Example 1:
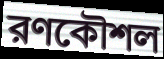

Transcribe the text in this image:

রণকৌশল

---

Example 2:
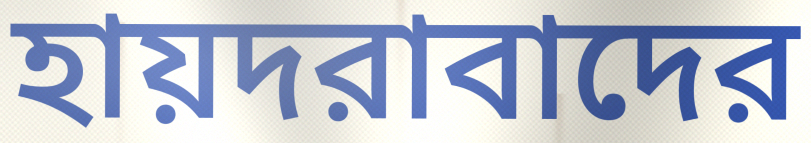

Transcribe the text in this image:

হায়দরাবাদের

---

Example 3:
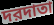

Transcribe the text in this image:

দরদাতা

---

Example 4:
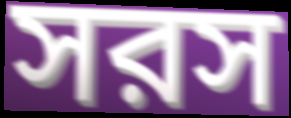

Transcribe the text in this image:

সরস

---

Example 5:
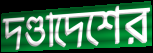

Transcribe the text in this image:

দণ্ডাদেশের